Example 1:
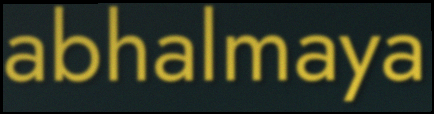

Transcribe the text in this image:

abhalmaya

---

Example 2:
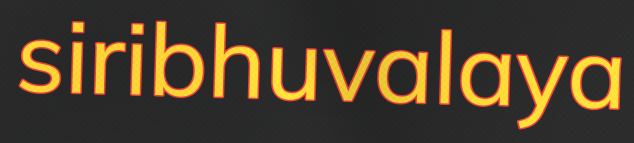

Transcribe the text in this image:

siribhuvalaya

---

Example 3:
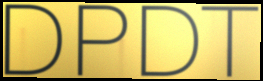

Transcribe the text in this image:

DPDT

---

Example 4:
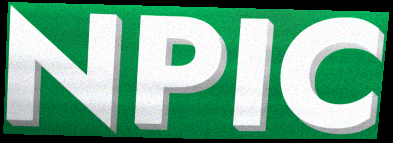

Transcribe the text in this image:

NPIC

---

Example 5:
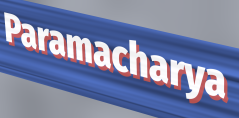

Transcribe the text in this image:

Paramacharya